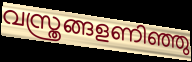
വസ്ത്രങ്ങളണിഞ്ഞു